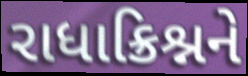
રાધાક્રિશ્નને